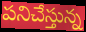
పనిచేస్తున్న